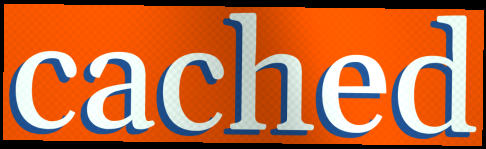
cached